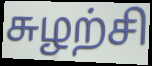
சுழற்சி